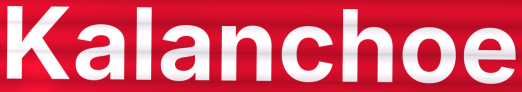
Kalanchoe